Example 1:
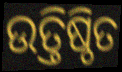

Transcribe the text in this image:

ଉତ୍ତିଷ୍ଠିତ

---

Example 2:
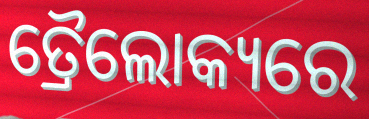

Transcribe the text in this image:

ତ୍ରୈଲୋକ୍ୟରେ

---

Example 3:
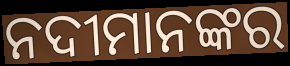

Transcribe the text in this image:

ନଦୀମାନଙ୍କର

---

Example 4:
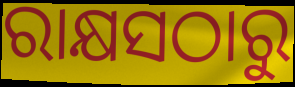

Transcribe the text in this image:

ରାକ୍ଷସଠାରୁ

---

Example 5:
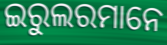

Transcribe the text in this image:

ଇରୁଲରମାନେ